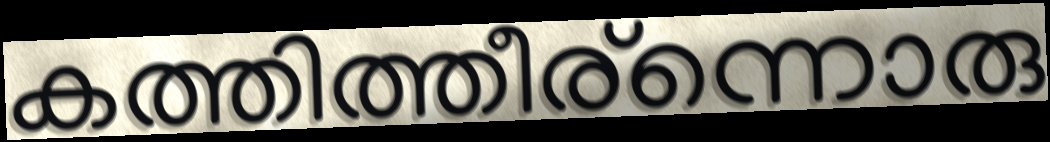
കത്തിത്തീര്ന്നൊരു